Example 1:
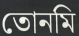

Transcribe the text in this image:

তোনমি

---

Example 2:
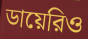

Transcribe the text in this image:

ডায়েরিও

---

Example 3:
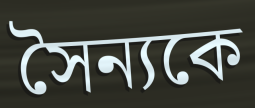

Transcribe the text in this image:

সৈন্যকে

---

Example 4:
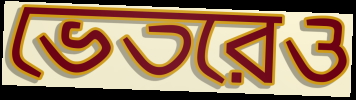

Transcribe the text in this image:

ভেতরেও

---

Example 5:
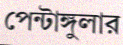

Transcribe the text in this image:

পেন্টাঙ্গুলার